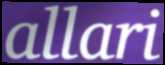
allari